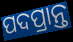
ପଦପ୍ରାନ୍ତ